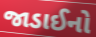
જાડાઈનો